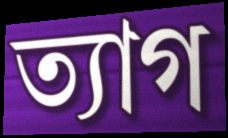
ত্যাগ